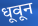
धूवून